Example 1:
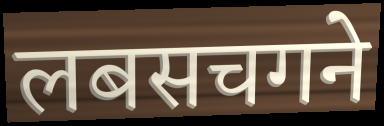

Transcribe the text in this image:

लबसचगने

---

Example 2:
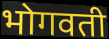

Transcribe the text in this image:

भोगवती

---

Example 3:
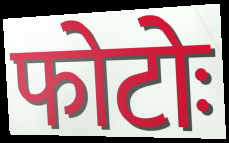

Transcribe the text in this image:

फोटोः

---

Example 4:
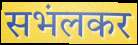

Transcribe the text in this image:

सभंलकर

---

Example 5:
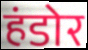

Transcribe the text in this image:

हंडोर